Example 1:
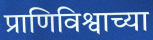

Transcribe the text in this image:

प्राणिविश्वाच्या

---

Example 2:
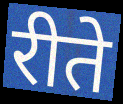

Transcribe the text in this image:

रीते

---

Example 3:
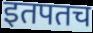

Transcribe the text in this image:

इतपतच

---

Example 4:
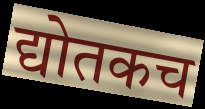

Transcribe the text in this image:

द्योतकच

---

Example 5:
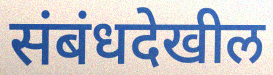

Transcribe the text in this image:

संबंधदेखील